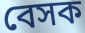
বেসক